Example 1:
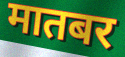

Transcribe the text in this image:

मातबर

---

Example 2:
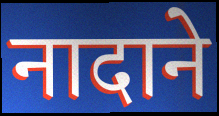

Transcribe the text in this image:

नादाने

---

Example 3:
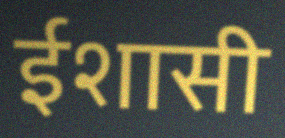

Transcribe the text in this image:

ईशासी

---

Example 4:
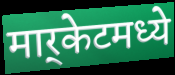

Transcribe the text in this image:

मार्केटमध्ये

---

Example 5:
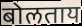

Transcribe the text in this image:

बोलताय